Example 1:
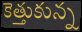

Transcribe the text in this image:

కెత్తుకున్న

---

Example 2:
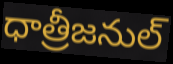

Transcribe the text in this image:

ధాత్రీజనుల్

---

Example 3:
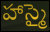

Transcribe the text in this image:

హాస్మై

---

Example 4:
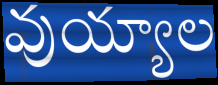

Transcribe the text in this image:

వుయ్యాల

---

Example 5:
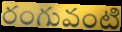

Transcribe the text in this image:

రంగువంటి